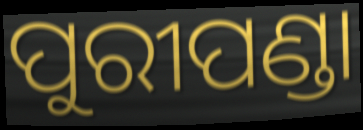
ପୁରୀପଣ୍ଡା